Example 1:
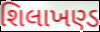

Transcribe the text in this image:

શિલાખણ્ડ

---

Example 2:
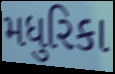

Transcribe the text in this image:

મધુરિકા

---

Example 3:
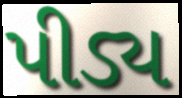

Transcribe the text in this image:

પીડ્ય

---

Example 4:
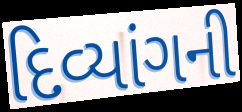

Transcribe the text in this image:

દિવ્યાંગની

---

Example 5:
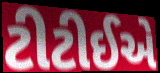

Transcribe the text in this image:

ટીટીઈએ